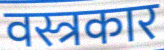
वस्त्रकार